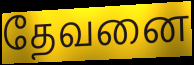
தேவனை